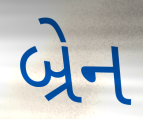
બ્રેન